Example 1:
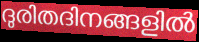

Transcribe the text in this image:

ദുരിതദിനങ്ങളിൽ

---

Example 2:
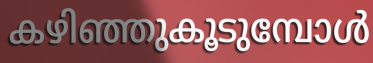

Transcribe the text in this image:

കഴിഞ്ഞുകൂടുമ്പോൾ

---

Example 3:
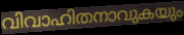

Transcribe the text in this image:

വിവാഹിതനാവുകയും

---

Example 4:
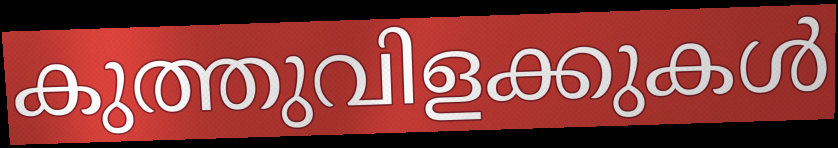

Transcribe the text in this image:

കുത്തുവിളക്കുകൾ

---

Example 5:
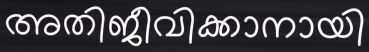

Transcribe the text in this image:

അതിജീവിക്കാനായി